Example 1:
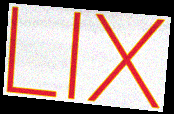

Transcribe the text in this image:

LIX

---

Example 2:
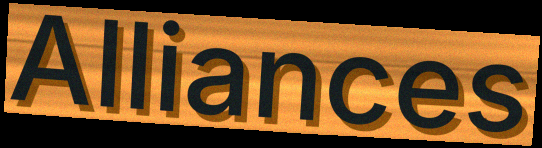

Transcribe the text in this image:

Alliances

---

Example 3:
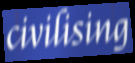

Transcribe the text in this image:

civilising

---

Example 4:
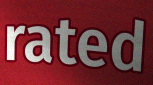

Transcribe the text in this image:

rated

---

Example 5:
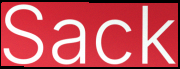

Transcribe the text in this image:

Sack